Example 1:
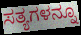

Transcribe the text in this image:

ಸತ್ಯಗಳನ್ನೂ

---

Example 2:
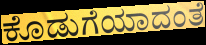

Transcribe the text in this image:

ಕೊಡುಗೆಯಾದಂತೆ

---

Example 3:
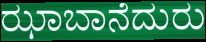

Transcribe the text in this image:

ಝಾಬಾನೆದುರು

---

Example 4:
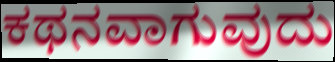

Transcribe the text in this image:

ಕಥನವಾಗುವುದು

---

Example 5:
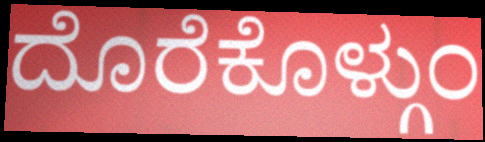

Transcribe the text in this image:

ದೊರೆಕೊಳ್ಗುಂ